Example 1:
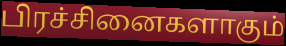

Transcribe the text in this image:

பிரச்சினைகளாகும்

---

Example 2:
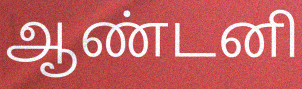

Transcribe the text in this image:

ஆண்டனி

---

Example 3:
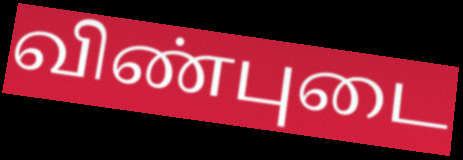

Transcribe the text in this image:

விண்புடை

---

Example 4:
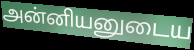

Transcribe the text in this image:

அன்னியனுடைய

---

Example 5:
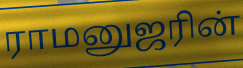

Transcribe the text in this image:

ராமனுஜரின்